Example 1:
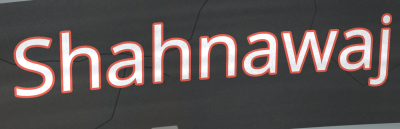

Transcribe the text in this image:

Shahnawaj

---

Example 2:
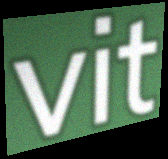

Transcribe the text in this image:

vit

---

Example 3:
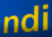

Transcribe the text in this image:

ndi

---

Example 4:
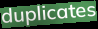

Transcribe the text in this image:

duplicates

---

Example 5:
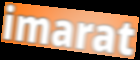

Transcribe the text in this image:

imarat